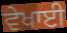
ਵੇਖਾਈ